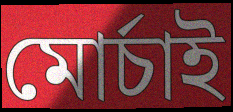
মোর্চাই